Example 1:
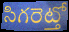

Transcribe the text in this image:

సిగరెట్తో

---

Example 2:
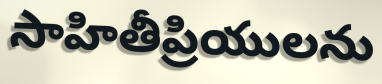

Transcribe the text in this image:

సాహితీప్రియులను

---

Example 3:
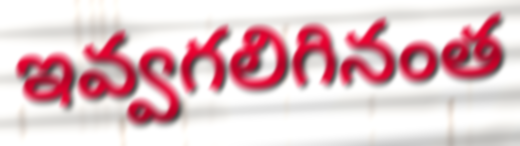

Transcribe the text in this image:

ఇవ్వగలిగినంత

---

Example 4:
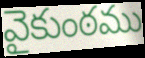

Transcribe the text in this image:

వైకుంఠము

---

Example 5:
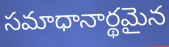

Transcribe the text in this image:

సమాధానార్థమైన